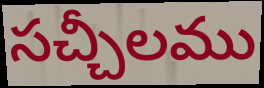
సచ్చీలము